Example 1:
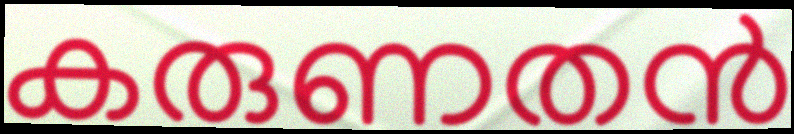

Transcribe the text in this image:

കരുണതൻ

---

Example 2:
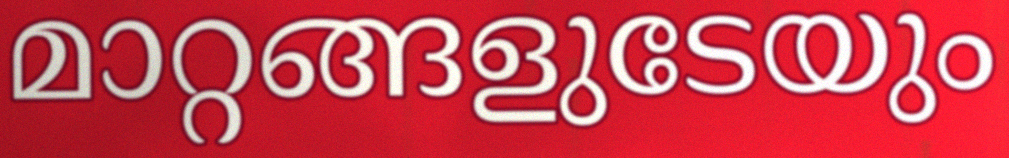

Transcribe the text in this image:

മാറ്റങ്ങളുടേയും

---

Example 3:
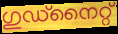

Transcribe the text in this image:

ഗുഡ്നൈറ്റ്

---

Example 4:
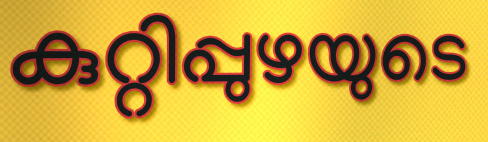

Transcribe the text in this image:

കുറ്റിപ്പുഴയുടെ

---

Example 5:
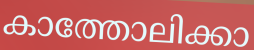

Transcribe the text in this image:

കാത്തോലിക്കാ